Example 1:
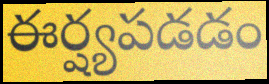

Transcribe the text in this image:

ఈర్ష్యపడడం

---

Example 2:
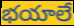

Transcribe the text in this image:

భయాలే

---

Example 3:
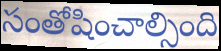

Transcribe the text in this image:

సంతోషించాల్సింది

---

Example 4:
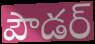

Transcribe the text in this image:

పౌడర్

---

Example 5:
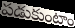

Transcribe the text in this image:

పడుకుంటాం